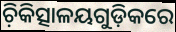
ଚ଼ିକିତ୍ସାଳୟଗୁଡ଼ିକରେ